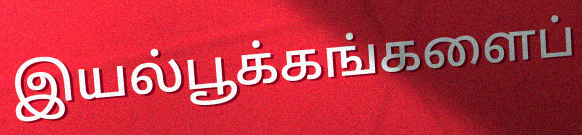
இயல்பூக்கங்களைப்